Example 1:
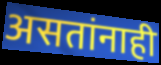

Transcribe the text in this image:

असतांनाही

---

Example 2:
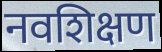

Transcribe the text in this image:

नवशिक्षण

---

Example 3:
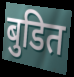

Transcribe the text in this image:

बुडित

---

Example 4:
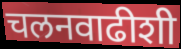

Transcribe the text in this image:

चलनवाढीशी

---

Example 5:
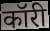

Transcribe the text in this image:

कॉरी